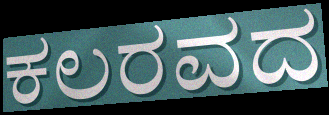
ಕಲರವದ